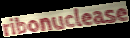
ribonuclease